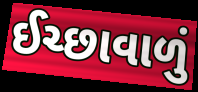
ઈચ્છાવાળું